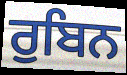
ਰੁਬਿਨ